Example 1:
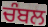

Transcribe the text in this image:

ਚੰਬਲ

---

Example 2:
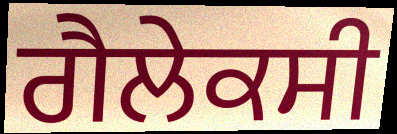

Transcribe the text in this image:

ਗੈਲੇਕਸੀ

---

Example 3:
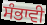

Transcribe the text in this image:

ਸੰਭਾਵੀ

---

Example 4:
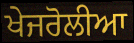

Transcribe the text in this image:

ਖੇਜਰੋਲੀਆ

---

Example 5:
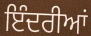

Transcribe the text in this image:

ਇੰਦਰੀਆਂ